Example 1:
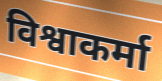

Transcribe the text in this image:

विश्वाकर्मा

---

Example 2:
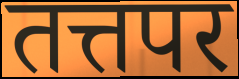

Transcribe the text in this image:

तत्तपर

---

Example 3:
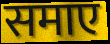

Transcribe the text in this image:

समाए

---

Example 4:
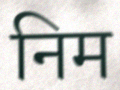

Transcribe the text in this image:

निम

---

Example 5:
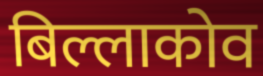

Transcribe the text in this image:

बिल्लाकोव